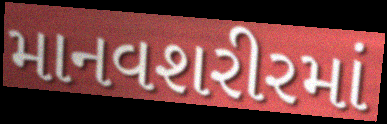
માનવશરીરમાં